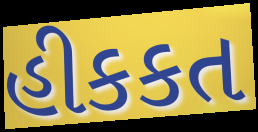
હીકકત